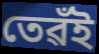
তেৱঁই